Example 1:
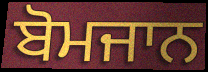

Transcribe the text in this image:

ਬੋਮਜਾਨ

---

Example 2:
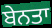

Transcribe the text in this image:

ਬੇਨਤਾ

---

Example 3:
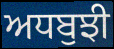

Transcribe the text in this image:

ਅਧਬੁਝੀ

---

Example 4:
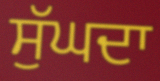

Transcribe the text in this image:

ਸੁੱਘਦਾ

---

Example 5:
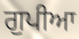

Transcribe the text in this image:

ਗੁਪੀਆ